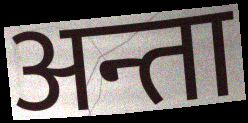
अन्ता